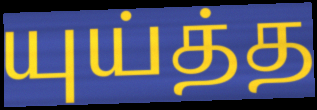
யுய்த்த